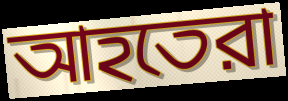
আহতেরা